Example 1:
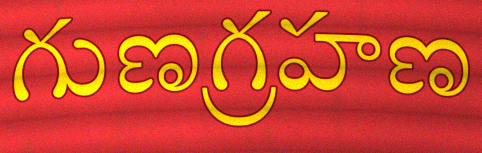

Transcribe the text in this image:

గుణగ్రహణ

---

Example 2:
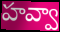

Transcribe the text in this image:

హవ్వా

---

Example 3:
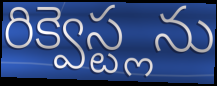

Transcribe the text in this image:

రిక్వెస్ట్లను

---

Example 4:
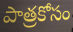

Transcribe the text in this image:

పాత్రకోసం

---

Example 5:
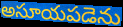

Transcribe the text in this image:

అసూయపడెను